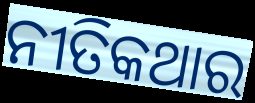
ନୀତିକଥାର